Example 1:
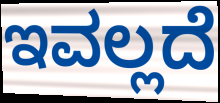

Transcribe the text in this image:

ಇವಲ್ಲದೆ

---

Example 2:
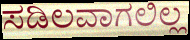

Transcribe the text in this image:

ಸಡಿಲವಾಗಲಿಲ್ಲ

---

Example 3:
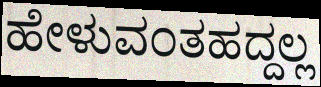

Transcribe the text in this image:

ಹೇಳುವಂತಹದ್ದಲ್ಲ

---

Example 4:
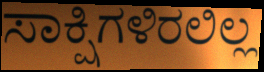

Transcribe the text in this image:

ಸಾಕ್ಷಿಗಳಿರಲಿಲ್ಲ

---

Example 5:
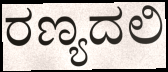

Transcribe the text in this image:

ರಣ್ಯದಲಿ